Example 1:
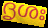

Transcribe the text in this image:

ദൃശഃ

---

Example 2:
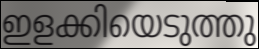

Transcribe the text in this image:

ഇളക്കിയെടുത്തു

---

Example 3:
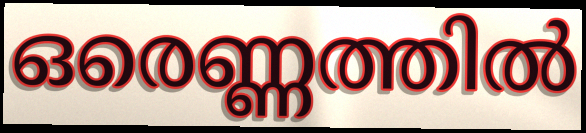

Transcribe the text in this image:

ഒരെണ്ണത്തിൽ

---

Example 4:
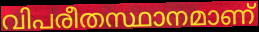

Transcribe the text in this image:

വിപരീതസ്ഥാനമാണ്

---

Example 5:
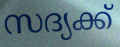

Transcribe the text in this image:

സദ്യക്ക്